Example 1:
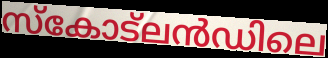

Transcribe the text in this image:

സ്കോട്ലൻഡിലെ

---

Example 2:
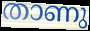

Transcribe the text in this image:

താണു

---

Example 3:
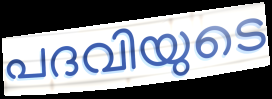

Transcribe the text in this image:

പദവിയുടെ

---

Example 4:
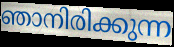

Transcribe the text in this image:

ഞാനിരിക്കുന്ന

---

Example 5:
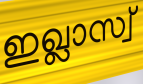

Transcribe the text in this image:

ഇഖ്ലാസ്വ്